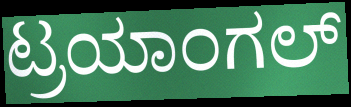
ಟ್ರಯಾಂಗಲ್